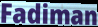
Fadiman